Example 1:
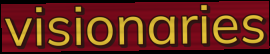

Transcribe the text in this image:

visionaries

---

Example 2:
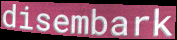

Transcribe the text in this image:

disembark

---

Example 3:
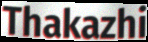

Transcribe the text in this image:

Thakazhi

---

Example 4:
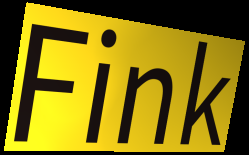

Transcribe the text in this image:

Fink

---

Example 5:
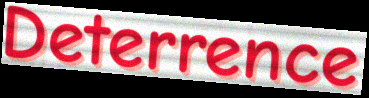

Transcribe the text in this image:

Deterrence